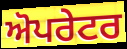
ਅੋਪਰੇਟਰ